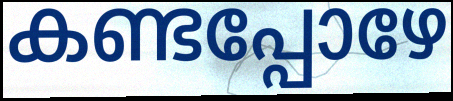
കണ്ടപ്പോഴേ